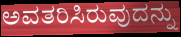
ಅವತರಿಸಿರುವುದನ್ನು